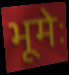
भूमेः